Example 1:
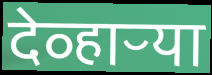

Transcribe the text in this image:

देव्हाऱ्या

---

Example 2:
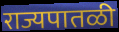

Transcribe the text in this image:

राज्यपातळी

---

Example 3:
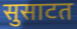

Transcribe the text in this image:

सुसाटत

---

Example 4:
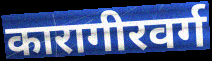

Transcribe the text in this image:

कारागीरवर्ग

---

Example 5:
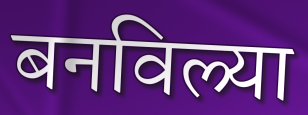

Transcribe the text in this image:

बनविल्या